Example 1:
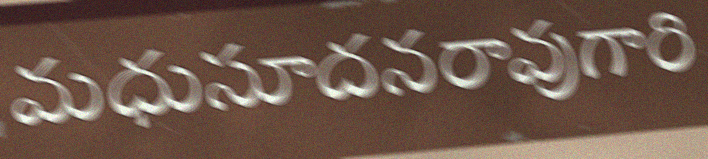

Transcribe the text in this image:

మధుసూదనరావుగారి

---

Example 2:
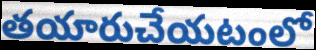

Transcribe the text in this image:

తయారుచేయటంలో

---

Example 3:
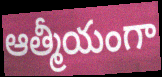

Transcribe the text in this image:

ఆత్మీయంగా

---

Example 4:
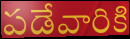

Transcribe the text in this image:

పడేవారికి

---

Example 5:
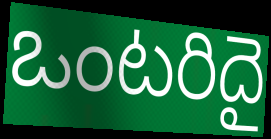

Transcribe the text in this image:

ఒంటరిదై